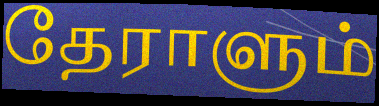
தேராளும்